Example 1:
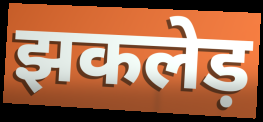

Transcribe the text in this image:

झकलेड़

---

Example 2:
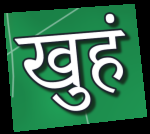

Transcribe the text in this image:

खुहं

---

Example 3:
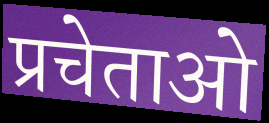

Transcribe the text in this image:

प्रचेताओ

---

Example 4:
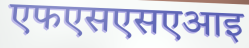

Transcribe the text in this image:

एफएसएसएआइ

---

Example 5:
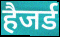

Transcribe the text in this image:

हैजर्ड